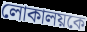
লোকালয়কে